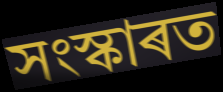
সংস্কাৰত